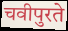
चवीपुरते